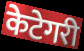
केटेगरी